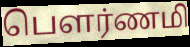
பௌர்ணமி